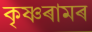
কৃষ্ণৰামৰ